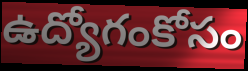
ఉద్యోగంకోసం